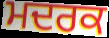
ਮਦਰਕ